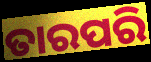
ତାରପରି